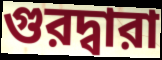
গুরদ্বারা